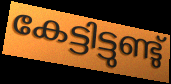
കേട്ടിട്ടുണ്ടു്